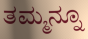
ತಮ್ಮನ್ನೂ